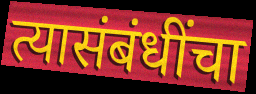
त्यासंबंधींचा